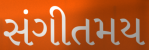
સંગીતમય